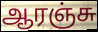
ஆரஞ்சு